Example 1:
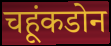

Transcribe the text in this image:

चहूंकडोन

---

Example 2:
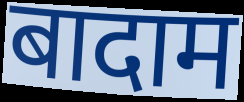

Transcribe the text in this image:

बादाम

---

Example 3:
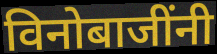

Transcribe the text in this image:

विनोबाजींनी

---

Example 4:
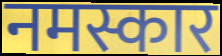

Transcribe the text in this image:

नमस्कार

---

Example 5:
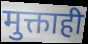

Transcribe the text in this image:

मुक्ताही